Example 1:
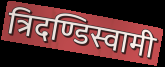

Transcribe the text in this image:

त्रिदण्डिस्वामी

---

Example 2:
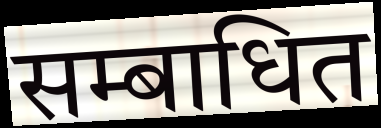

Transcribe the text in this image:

सम्बाधित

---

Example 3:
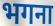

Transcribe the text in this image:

भगना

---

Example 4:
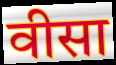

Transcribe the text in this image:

वीसा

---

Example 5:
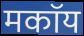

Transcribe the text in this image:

मकॉय